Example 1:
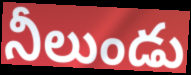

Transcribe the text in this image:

నీలుండు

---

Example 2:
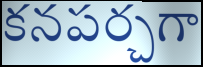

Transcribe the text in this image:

కనపర్చగా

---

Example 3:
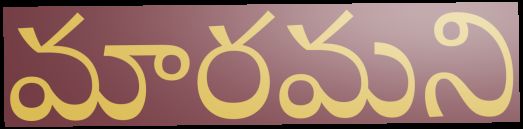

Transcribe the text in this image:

మారమని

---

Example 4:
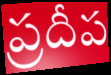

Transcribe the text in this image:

ప్రదీప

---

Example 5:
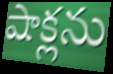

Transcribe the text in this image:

షాక్లను